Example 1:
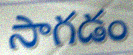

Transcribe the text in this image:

సాగడం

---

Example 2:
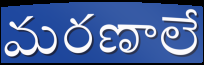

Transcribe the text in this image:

మరణాలే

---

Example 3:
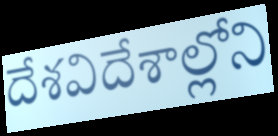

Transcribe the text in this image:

దేశవిదేశాల్లోని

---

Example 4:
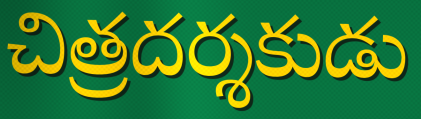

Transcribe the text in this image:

చిత్రదర్శకుడు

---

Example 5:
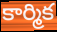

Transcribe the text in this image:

కార్మిక